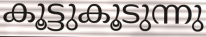
കൂട്ടുകൂടുന്നു